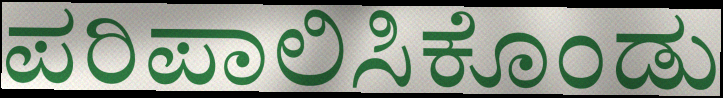
ಪರಿಪಾಲಿಸಿಕೊಂಡು